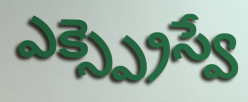
ఎక్స్ప్రెస్వే